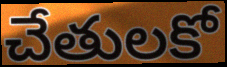
చేతులకో